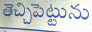
తెచ్చిపెట్టును